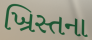
ખ્રિસ્તના